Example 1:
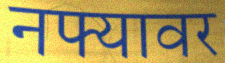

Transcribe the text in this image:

नफ्यावर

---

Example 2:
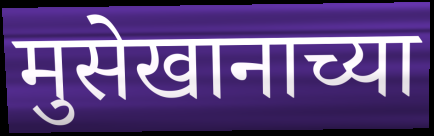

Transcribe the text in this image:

मुसेखानाच्या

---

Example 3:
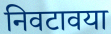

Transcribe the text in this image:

निवटावया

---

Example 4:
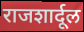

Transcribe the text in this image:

राजशार्दूल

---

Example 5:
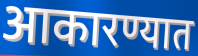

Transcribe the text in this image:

आकारण्यात